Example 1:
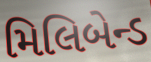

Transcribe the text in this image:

મિલિબેન્ડ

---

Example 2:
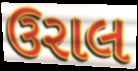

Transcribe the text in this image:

ઉરાલ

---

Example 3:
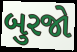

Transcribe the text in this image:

બુરજો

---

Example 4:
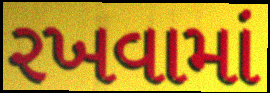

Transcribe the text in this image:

રખવામાં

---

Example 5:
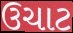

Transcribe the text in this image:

ઉચાટ